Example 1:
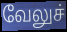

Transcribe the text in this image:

வேலுச்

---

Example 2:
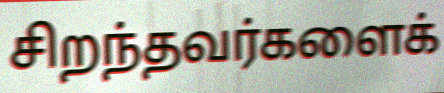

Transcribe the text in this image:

சிறந்தவர்களைக்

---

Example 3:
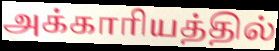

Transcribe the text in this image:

அக்காரியத்தில்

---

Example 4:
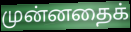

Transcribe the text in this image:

முன்னதைக்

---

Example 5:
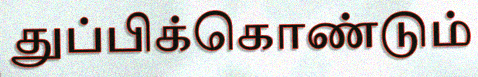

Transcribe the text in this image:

துப்பிக்கொண்டும்